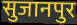
सुजानपुर